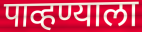
पाव्हण्याला